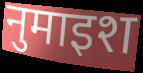
नुमाइश